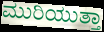
ಮುರಿಯುತ್ತಾ